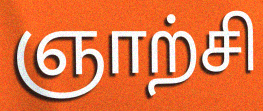
ஞாற்சி